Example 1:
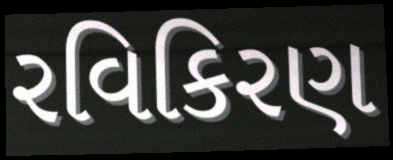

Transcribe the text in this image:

રવિકિરણ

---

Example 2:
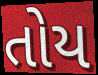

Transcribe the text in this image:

તોય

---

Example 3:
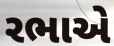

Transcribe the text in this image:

રભાએ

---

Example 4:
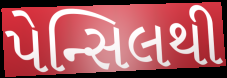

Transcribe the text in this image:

પેન્સિલથી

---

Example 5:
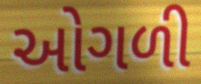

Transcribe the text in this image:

ઓગળી